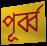
পূর্ব্ব